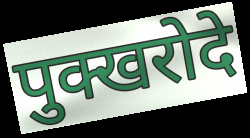
पुक्खरोदे